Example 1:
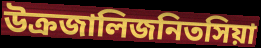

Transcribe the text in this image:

উক্রজালিজনিতসিয়া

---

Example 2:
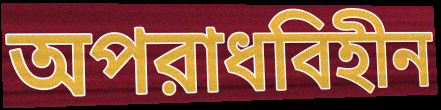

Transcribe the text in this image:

অপরাধবিহীন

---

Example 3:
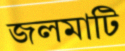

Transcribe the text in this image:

জলমাটি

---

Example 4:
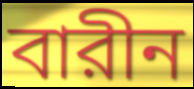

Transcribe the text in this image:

বারীন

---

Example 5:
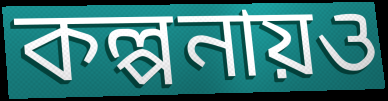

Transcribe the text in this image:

কল্পনায়ও